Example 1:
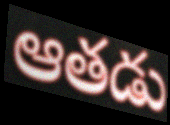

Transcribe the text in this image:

ఆతడు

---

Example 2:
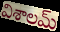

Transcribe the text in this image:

విశాలమ్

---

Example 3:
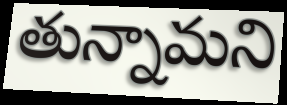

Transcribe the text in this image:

తున్నామని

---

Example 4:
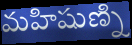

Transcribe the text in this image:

మహిషుణ్ని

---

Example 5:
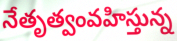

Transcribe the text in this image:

నేతృత్వంవహిస్తున్న